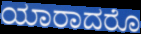
ಯಾರಾದರೊ